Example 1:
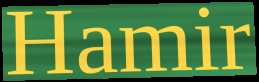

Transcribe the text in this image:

Hamir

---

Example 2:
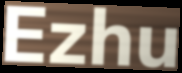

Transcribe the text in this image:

Ezhu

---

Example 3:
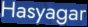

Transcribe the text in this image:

Hasyagar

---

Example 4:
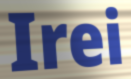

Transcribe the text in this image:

Irei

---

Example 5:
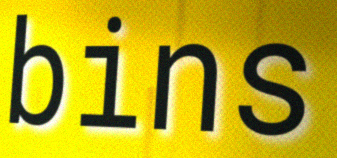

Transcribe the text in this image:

bins